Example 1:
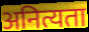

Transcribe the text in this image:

अनित्यता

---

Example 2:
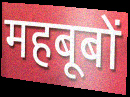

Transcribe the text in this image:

महबूबों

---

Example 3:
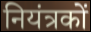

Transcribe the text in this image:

नियंत्रकों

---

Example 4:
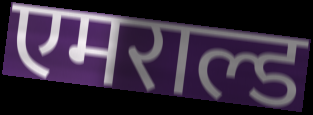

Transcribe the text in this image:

एमराल्‍ड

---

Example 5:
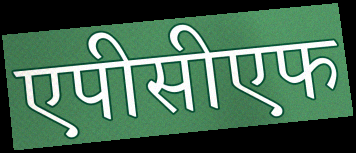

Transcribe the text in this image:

एपीसीएफ